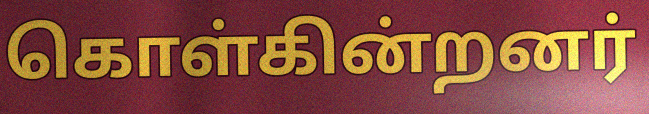
கொள்கின்றனர்